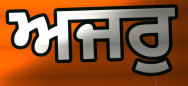
ਅਜਰੁ